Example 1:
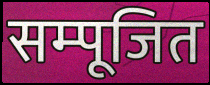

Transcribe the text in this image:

सम्पूजित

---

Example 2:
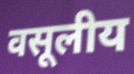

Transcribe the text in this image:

वसूलीय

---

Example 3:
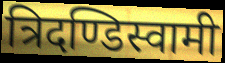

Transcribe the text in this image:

त्रिदण्डिस्वामी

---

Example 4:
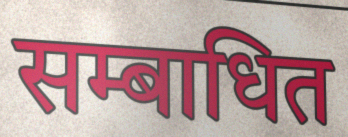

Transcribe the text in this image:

सम्बाधित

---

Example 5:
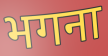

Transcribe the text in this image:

भगना